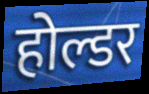
होल्डर